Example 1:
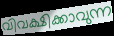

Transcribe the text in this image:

വിവക്ഷിക്കാവുന്ന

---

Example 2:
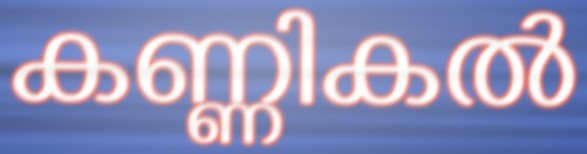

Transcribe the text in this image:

കണ്ണികൽ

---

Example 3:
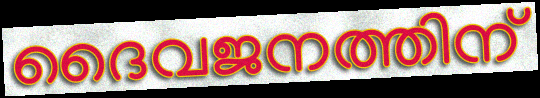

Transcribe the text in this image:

ദൈവജനത്തിന്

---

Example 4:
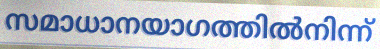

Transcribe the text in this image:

സമാധാനയാഗത്തിൽനിന്ന്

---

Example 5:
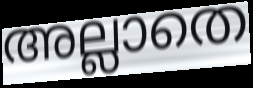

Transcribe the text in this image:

അല്ലാതെ